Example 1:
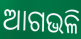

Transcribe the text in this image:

ଆଗଭଳି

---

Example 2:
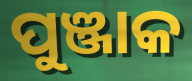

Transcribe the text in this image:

ପୁଞ୍ଜାକ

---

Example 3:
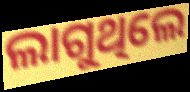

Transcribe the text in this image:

ଲାଗୁଥିଲେ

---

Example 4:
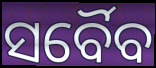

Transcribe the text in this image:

ସର୍ବୈବ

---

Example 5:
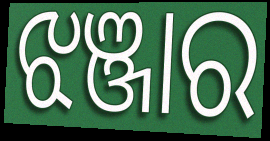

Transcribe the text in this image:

ଝଞ୍ଜାର